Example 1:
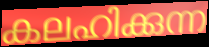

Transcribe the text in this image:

കലഹിക്കുന്ന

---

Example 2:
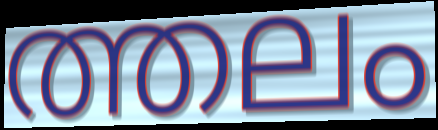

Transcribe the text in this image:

ത്തലം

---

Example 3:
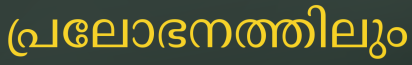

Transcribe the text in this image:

പ്രലോഭനത്തിലും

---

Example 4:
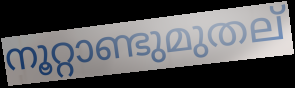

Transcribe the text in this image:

നൂറ്റാണ്ടുമുതല്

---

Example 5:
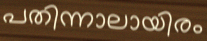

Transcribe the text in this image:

പതിന്നാലായിരം